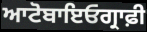
ਆਟੋਬਾਇਓਗ੍ਰਾਫ਼ੀ